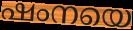
ഷംനയെ